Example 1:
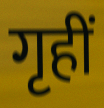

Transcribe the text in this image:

गृहीं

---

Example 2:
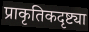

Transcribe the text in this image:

प्राकृतिकदृष्ट्या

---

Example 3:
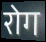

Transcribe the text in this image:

रोग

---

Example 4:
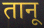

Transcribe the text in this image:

तानू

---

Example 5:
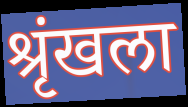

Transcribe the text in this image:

श्रृंखला